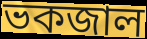
ভকজাল